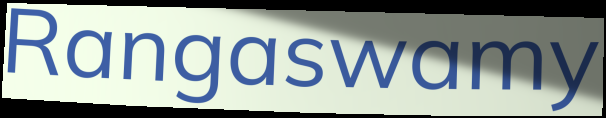
Rangaswamy